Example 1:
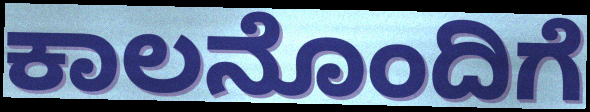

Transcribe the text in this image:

ಕಾಲನೊಂದಿಗೆ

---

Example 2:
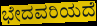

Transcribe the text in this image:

ಭೇದವರಿಯದೆ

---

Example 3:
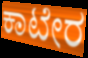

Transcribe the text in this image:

ಕಾಟೇರ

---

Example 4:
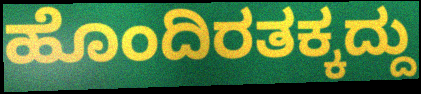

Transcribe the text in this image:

ಹೊಂದಿರತಕ್ಕದ್ದು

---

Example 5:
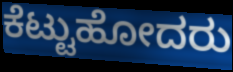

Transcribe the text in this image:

ಕೆಟ್ಟುಹೋದರು